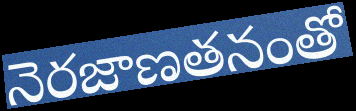
నెరజాణతనంతో